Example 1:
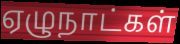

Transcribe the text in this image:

ஏழுநாட்கள்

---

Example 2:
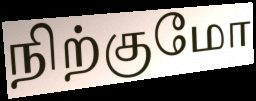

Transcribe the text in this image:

நிற்குமோ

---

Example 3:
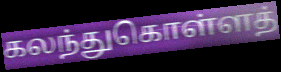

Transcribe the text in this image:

கலந்துகொள்ளத்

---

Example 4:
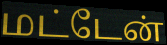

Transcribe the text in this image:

மட்டேன்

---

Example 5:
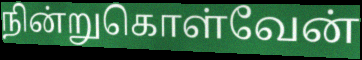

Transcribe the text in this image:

நின்றுகொள்வேன்